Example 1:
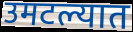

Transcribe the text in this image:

उमटल्यात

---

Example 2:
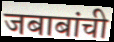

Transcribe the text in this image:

जबाबांची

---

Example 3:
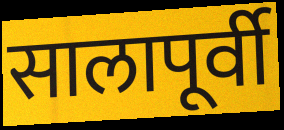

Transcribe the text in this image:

सालापूर्वी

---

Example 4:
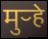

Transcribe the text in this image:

मुऱ्हे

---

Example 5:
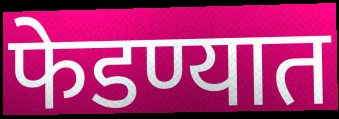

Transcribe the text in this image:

फेडण्यात